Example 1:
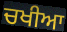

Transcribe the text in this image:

ਚਖੀਆ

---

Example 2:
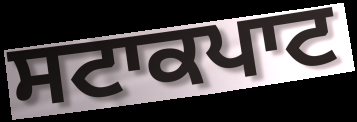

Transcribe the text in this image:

ਸਟਾਕਪਾਟ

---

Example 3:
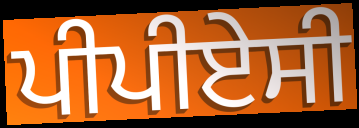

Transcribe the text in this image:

ਪੀਪੀਏਸੀ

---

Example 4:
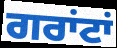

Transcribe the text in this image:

ਗਰਾਂਟਾਂ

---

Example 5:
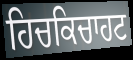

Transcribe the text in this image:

ਹਿਚਕਿਚਾਹਟ